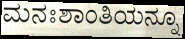
ಮನಃಶಾಂತಿಯನ್ನೂ